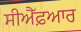
ਸੀਐੱਫ਼ਆਰ